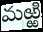
మఱ్ఱి